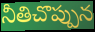
నీతిచొప్పున